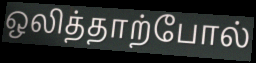
ஒலித்தாற்போல்